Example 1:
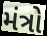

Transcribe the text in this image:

મંત્રો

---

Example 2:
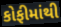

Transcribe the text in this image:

કોફીમાંથી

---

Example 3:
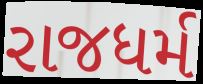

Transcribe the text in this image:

રાજધર્મ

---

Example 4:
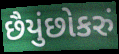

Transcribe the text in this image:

છૈયુંછોકરું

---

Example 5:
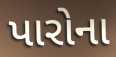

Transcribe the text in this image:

પારોના